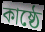
কাষ্ঠে